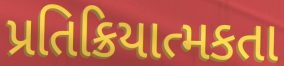
પ્રતિક્રિયાત્મકતા